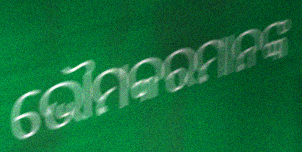
ଭୌମକରମାନଙ୍କ